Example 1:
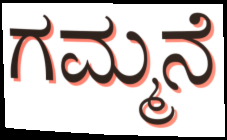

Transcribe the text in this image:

ಗಮ್ಮನೆ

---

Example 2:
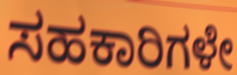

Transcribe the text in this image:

ಸಹಕಾರಿಗಳೇ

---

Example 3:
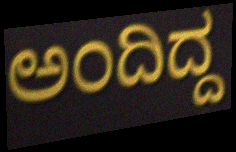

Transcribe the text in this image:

ಅಂದಿದ್ದ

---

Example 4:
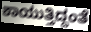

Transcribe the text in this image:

ಕಾಯುತ್ತಿದ್ದಂತೆ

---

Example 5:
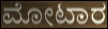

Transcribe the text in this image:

ಮೋಟಾರ